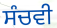
ਸੰਚਵੀ